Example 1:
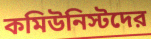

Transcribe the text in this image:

কমিউনিস্টদের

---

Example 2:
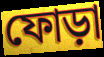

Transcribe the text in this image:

ফোড়া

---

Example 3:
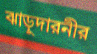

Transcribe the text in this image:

ঝাড়ুদারনীর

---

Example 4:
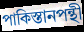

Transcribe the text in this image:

পাকিস্তানপন্থী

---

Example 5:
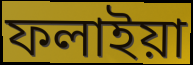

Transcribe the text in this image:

ফলাইয়া